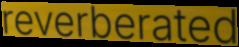
reverberated